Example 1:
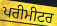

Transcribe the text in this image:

ਪਰੀਮੀਟਰ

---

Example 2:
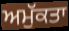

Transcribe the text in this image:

ਅਮੁੱਕਤਾ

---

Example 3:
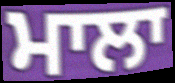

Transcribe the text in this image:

ਮਾਲਾ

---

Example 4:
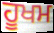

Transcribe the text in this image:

ਹੂਖਮ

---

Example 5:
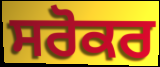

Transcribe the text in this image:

ਸਰੋਕਰ